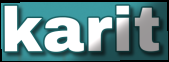
karit